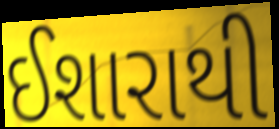
ઈશારાથી